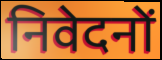
निवेदनों